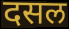
दसल